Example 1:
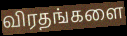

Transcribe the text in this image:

விரதங்களை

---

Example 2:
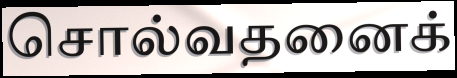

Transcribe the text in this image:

சொல்வதனைக்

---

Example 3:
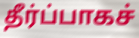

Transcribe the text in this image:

தீர்ப்பாகச்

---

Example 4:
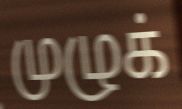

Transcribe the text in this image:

முழுக்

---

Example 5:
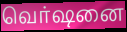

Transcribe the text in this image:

வெர்ஷனை